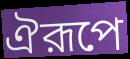
ঐরূপে